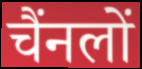
चैंनलों